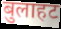
बुलाहट